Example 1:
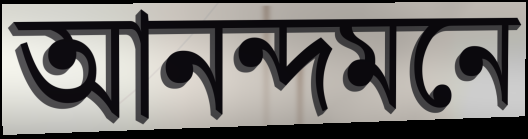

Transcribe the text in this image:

আনন্দমনে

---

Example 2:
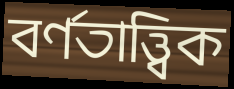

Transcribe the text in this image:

বৰ্ণতাত্ত্বিক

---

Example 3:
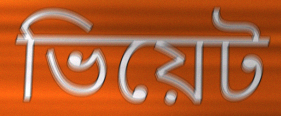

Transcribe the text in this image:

ভিয়েট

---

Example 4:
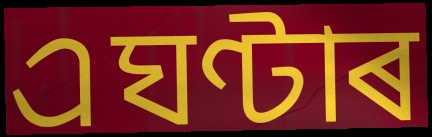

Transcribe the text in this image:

এঘণ্টাৰ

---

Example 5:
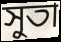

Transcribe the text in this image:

সুতা